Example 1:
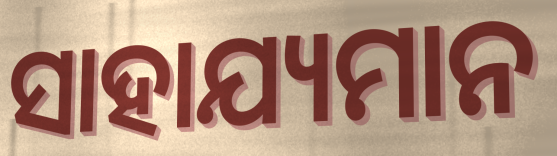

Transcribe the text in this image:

ସାହାଯ୍ୟମାନ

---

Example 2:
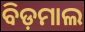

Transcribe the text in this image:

ବିଡ଼ମାଲ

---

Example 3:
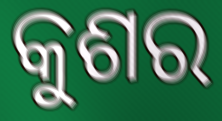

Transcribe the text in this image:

କୁଶର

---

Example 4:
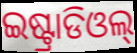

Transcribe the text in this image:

ଇଷ୍ଟ୍ରାଡିଓଲ୍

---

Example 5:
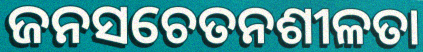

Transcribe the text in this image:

ଜନସଚେତନଶୀଳତା